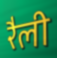
रैली